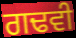
ਗਢਵੀ